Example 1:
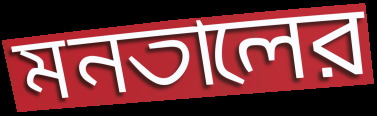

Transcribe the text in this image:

মনতালের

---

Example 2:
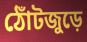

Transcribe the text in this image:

ঠোঁটজুড়ে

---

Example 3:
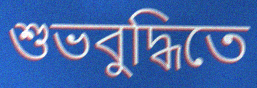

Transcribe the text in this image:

শুভবুদ্ধিতে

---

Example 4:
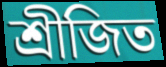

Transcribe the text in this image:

শ্রীজিত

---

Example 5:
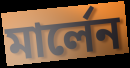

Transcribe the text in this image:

মার্লেন